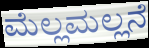
ಮೆಲ್ಲಮಲ್ಲನೆ